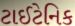
ટાઈટેનિક